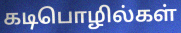
கடிபொழில்கள்